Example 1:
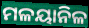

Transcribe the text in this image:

ମଳୟାନିଳ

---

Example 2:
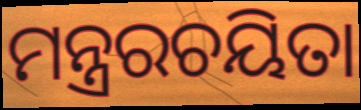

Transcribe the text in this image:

ମନ୍ତ୍ରରଚୟିତା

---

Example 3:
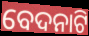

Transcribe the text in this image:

ବେଦନାଟି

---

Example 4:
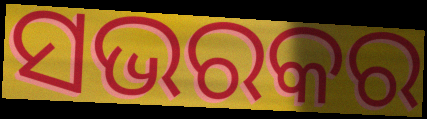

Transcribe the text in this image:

ସଭରକର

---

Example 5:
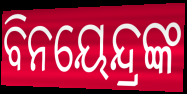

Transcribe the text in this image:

ବିନୟେନ୍ଦ୍ରଙ୍କ